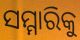
ସମ୍ମାରିକୁ